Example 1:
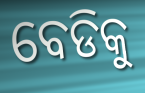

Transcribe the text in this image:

ବେଡିକୁ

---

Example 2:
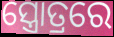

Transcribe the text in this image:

ସ୍ତ୍ରୋତ୍ରରେ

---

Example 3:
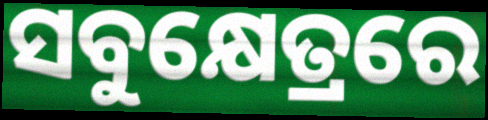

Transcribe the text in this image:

ସବୁକ୍ଷେତ୍ରରେ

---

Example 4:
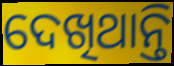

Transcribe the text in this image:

ଦେଖିଥାନ୍ତି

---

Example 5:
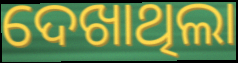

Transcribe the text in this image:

ଦେଖାଥିଲା